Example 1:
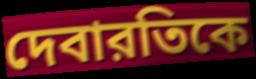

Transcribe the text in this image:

দেবারতিকে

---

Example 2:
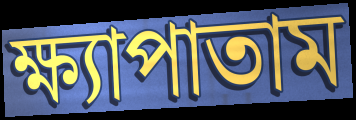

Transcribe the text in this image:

ক্ষ্যাপাতাম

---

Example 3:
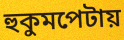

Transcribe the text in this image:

হুকুমপেটায়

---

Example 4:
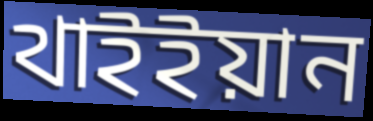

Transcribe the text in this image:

থাইইয়ান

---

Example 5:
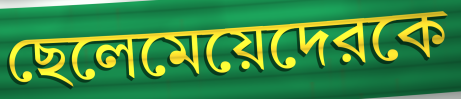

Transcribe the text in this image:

ছেলেমেয়েদেরকে